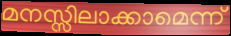
മനസ്സിലാക്കാമെന്ന്